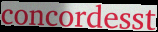
concordesst